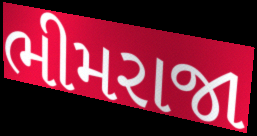
ભીમરાજા